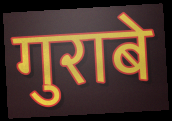
गुराबे